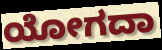
ಯೋಗದಾ